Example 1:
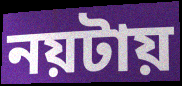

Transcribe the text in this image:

নয়টায়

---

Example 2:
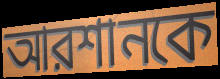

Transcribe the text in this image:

আরশানকে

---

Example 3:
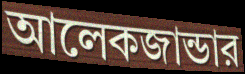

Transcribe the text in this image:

আলেকজান্ডার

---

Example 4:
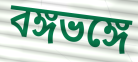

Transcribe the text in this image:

বঙ্গভঙ্গে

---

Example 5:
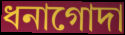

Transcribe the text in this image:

ধনাগোদা